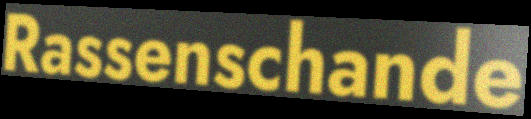
Rassenschande